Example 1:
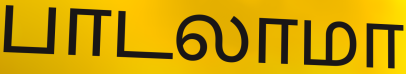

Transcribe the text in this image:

பாடலாமா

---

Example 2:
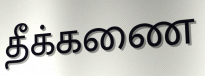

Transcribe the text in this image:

தீக்கணை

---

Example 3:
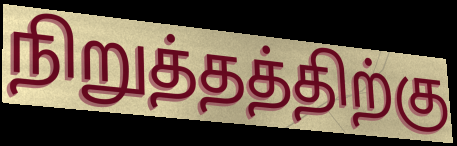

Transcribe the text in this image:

நிறுத்தத்திற்கு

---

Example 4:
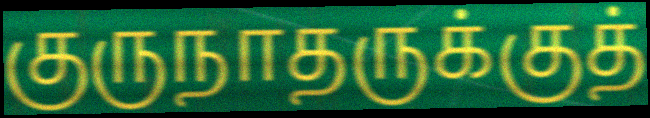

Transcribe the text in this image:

குருநாதருக்குத்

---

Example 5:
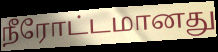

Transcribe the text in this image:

நீரோட்டமானது